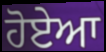
ਹੋਏਆ